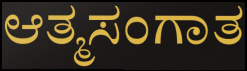
ಆತ್ಮಸಂಗಾತ